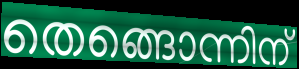
തെങ്ങൊന്നിന്